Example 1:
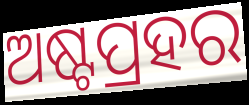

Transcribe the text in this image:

ଅଷ୍ଟପ୍ରହର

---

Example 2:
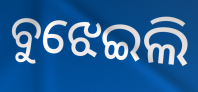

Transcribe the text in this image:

ବୁଝେଇଲି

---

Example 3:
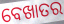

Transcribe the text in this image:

ବେଖାତର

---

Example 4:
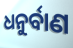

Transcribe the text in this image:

ଧନୁର୍ବାଣ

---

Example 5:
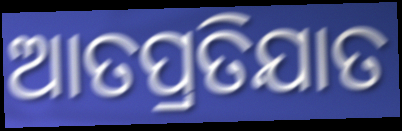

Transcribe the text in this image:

ଆତପ୍ରତିଯାତ